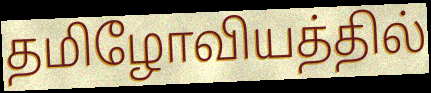
தமிழோவியத்தில்